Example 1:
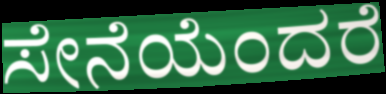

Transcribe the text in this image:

ಸೇನೆಯೆಂದರೆ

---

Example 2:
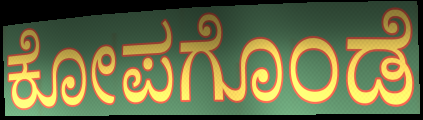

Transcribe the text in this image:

ಕೋಪಗೊಂಡೆ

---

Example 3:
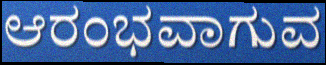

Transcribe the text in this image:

ಆರಂಭವಾಗುವ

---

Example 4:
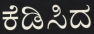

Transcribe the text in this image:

ಕೆಡಿಸಿದ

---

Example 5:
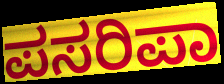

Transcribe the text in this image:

ಪಸರಿಪಾ